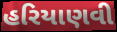
હરિયાણવી